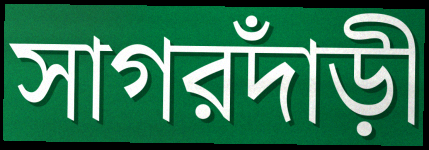
সাগরদাঁড়ী